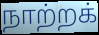
நாற்றக்